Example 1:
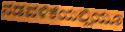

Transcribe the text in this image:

ನಡವಳಿಕೆಯಲ್ಲಿಯೂ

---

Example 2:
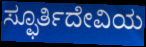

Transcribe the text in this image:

ಸ್ಫೂರ್ತಿದೇವಿಯ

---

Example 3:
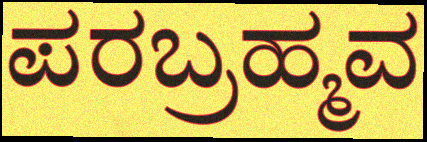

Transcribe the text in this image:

ಪರಬ್ರಹ್ಮವ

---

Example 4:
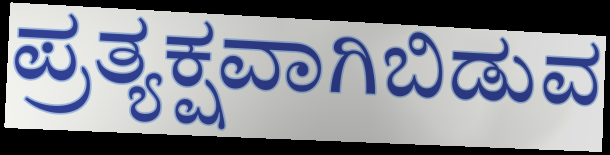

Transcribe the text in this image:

ಪ್ರತ್ಯಕ್ಷವಾಗಿಬಿಡುವ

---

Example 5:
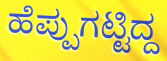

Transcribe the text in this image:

ಹೆಪ್ಪುಗಟ್ಟಿದ್ದ